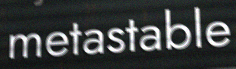
metastable